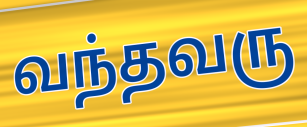
வந்தவரு